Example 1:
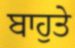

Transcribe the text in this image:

ਬਾਹੁਤੇ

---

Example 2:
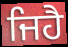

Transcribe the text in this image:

ਜਿਹੈ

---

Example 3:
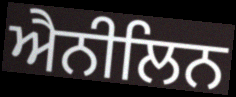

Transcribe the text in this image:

ਐਨੀਲਿਨ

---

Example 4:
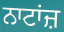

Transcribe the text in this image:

ਨਾਟਾਂਜ਼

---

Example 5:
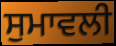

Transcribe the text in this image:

ਸੁਮਾਵਲੀ